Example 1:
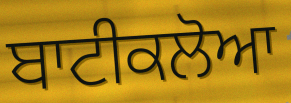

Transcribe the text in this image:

ਬਾਟੀਕਲੋਆ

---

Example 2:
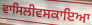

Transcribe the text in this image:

ਵਾਸਿਲੀਵਸਕਾਇਆ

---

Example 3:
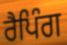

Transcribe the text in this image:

ਰੈਪਿੰਗ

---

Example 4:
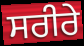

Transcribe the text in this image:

ਸਰੀਰੇ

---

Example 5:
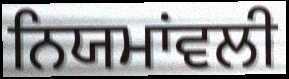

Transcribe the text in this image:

ਨਿਯਮਾਂਵਲੀ